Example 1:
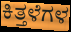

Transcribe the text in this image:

ಕಿತ್ತಳೆಗಳ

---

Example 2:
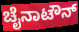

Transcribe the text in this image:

ಚೈನಾಟೌನ್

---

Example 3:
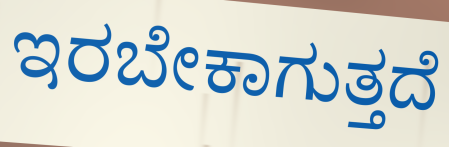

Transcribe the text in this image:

ಇರಬೇಕಾಗುತ್ತದೆ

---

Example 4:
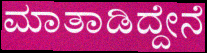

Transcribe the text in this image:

ಮಾತಾಡಿದ್ದೇನೆ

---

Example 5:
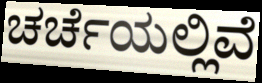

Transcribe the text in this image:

ಚರ್ಚೆಯಲ್ಲಿವೆ